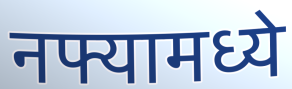
नफ्यामध्ये